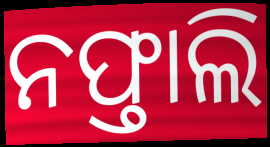
ନଫ୍ତାଲି